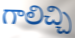
గాలిచ్చి